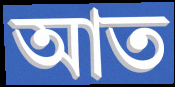
আত